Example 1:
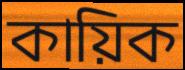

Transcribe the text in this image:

কায়িক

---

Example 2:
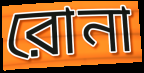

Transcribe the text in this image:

রোনা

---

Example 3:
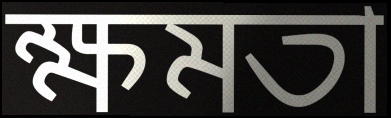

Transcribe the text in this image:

ক্ষমতা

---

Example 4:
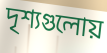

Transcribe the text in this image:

দৃশ্যগুলোয়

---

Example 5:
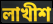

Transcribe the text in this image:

লাখীশ